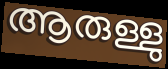
ആരുള്ളു